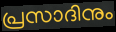
പ്രസാദിനും